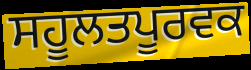
ਸਹੂਲਤਪੂਰਵਕ